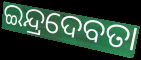
ଇନ୍ଦ୍ରଦେବତା